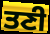
ਤਣੀ